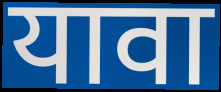
यावा